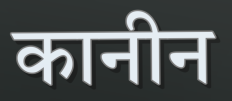
कानीन